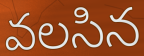
వలసిన